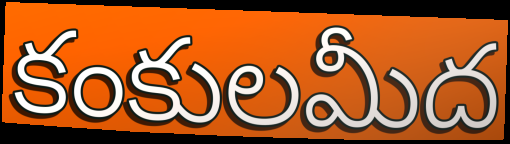
కంకులమీద